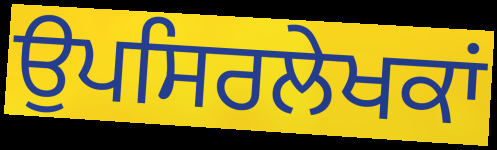
ਉਪਸਿਰਲੇਖਕਾਂ